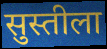
सुस्तीला